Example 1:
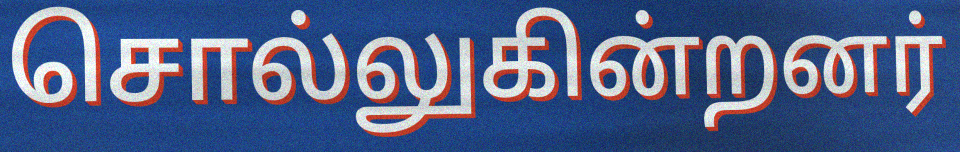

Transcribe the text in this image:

சொல்லுகின்றனர்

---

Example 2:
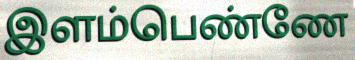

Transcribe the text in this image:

இளம்பெண்ணே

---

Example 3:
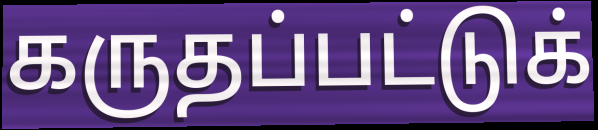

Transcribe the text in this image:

கருதப்பட்டுக்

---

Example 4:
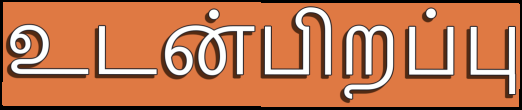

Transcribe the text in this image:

உடன்பிறப்பு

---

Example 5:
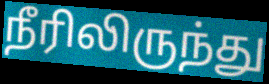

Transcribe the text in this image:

நீரிலிருந்து